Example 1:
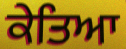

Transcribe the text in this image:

ਕੇਤਿਆ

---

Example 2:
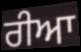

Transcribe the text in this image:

ਰੀਆ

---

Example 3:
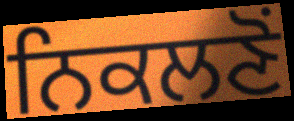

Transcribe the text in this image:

ਨਿਕਲਣੋਂ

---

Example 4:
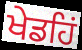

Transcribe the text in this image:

ਖੇਡਹਿਂ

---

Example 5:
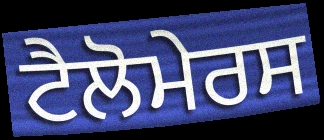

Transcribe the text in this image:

ਟੈਲੋਮੇਰਸ